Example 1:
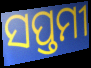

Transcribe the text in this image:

ସପ୍ତମୀ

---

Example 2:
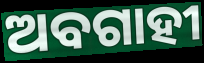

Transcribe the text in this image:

ଅବଗାହୀ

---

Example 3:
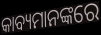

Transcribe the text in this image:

କାବ୍ୟମାନଙ୍କରେ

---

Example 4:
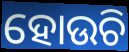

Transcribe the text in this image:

ହୋଉଚି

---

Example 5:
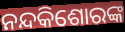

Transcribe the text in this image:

ନନ୍ଦକିଶୋରଙ୍କ